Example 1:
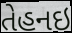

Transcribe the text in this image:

તેહનઇ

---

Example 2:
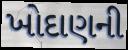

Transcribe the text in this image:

ખોદાણની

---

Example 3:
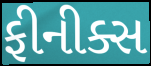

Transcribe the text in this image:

ફીનીક્સ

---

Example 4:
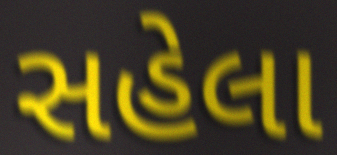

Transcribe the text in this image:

સહેલા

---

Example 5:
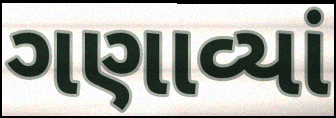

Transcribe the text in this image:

ગણાવ્યાં